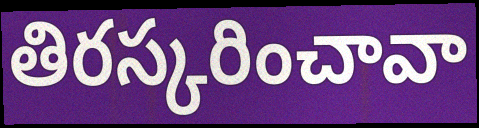
తిరస్కరించావా